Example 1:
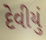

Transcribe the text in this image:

દેવીયું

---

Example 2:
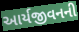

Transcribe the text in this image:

આર્યજીવનની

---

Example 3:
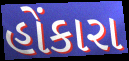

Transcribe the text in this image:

હોંકારા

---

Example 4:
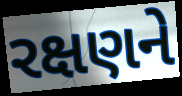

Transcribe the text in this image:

રક્ષણને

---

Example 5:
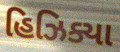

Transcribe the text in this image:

હિઝિક્યા